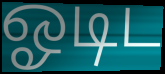
ஓடிட